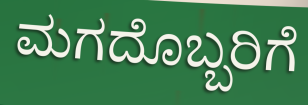
ಮಗದೊಬ್ಬರಿಗೆ